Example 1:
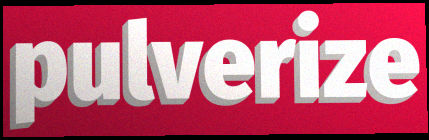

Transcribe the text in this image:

pulverize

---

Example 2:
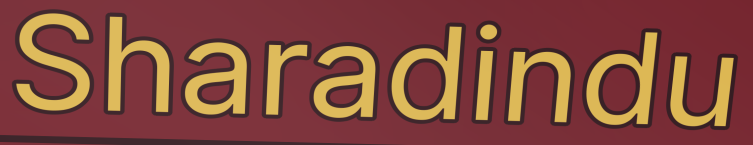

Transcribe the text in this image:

Sharadindu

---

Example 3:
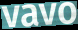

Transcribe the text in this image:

vavo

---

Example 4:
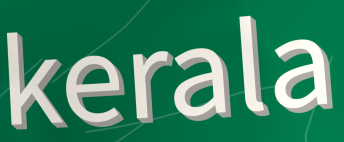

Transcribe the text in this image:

kerala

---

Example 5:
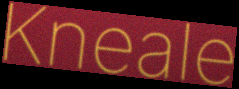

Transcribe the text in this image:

Kneale